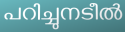
പറിച്ചുനടീൽ